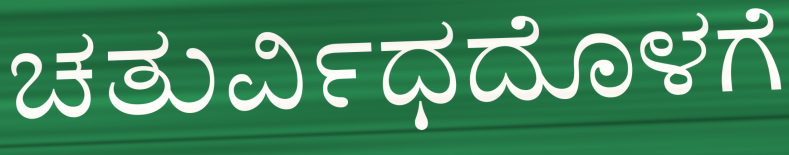
ಚತುರ್ವಿಧದೊಳಗೆ